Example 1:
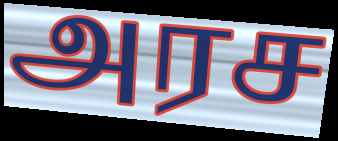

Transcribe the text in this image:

அரச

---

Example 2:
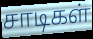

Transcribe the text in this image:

சாடிகள்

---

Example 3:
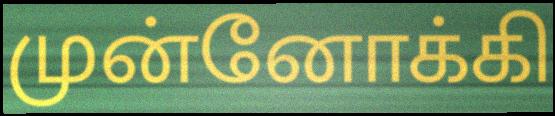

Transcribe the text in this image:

முன்னோக்கி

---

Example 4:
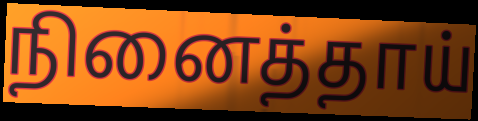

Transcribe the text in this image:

நினைத்தாய்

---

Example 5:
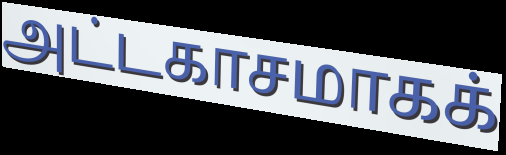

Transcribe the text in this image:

அட்டகாசமாகக்